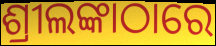
ଶ୍ରୀଲଙ୍କାଠାରେ